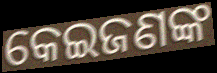
କେଇଜଣଙ୍କ